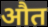
औत